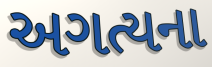
અગત્યના